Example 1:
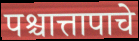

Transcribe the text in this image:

पश्चात्तापाचे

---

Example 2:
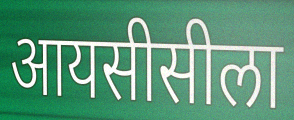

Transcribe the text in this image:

आयसीसीला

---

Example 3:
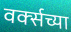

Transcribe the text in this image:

वर्क्‍सच्या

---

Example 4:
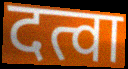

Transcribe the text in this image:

दत्वा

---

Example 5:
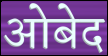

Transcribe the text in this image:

ओबेद